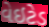
વેઇટેડ